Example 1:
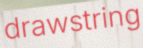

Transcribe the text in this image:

drawstring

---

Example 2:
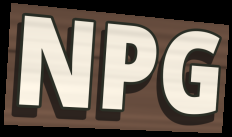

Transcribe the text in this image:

NPG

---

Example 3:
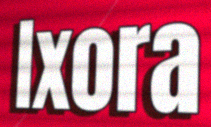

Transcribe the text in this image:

Ixora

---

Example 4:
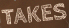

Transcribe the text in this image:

TAKES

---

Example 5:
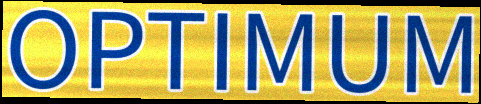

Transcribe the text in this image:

OPTIMUM